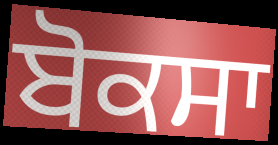
ਬੋਕਸਾ